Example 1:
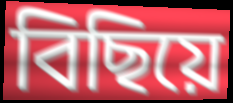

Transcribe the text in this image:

বিছিয়ে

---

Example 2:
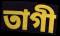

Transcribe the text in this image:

তাগী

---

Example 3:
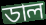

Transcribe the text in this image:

ডাল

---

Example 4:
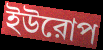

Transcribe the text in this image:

ইউরোপ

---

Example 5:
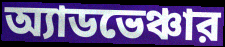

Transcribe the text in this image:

অ্যাডভেঞ্চার